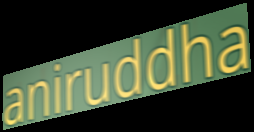
aniruddha